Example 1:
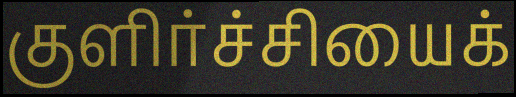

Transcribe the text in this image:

குளிர்ச்சியைக்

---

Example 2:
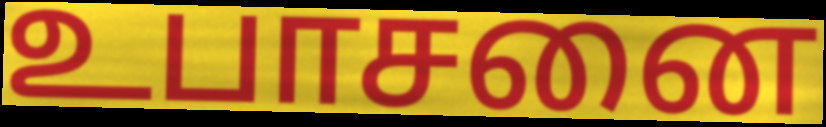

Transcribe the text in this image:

உபாசனை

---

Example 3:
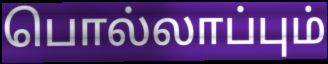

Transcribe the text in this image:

பொல்லாப்பும்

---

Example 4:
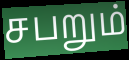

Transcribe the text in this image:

சபறும்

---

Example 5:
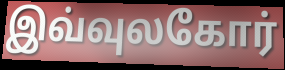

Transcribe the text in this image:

இவ்வுலகோர்